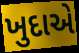
ખુદાએ